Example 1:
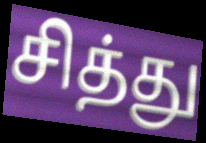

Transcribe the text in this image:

சித்து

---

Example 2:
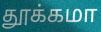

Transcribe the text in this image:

தூக்கமா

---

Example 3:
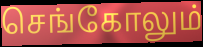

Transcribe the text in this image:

செங்கோலும்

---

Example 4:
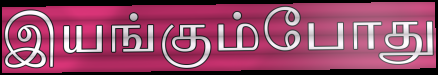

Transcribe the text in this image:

இயங்கும்போது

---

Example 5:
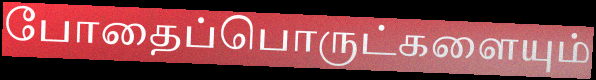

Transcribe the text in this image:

போதைப்பொருட்களையும்